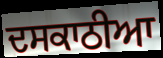
ਦਸਕਾਠੀਆ